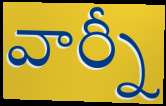
వార్నీ